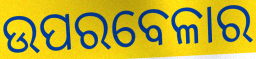
ଉପରବେଳାର